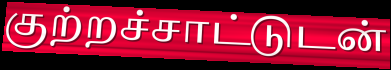
குற்றச்சாட்டுடன்